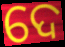
ଦେ